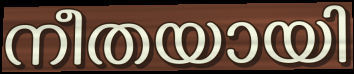
നീതയായി